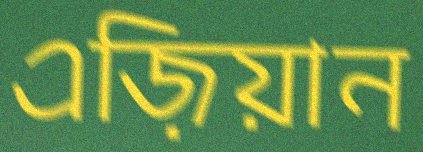
এজ়িয়ান